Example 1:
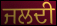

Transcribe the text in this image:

ਜਲਦੀ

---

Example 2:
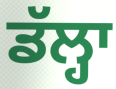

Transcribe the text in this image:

ਡੱਲ੍ਹਾ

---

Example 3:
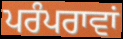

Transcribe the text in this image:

ਪਰੰਪਰਾਵਾਂ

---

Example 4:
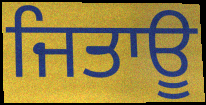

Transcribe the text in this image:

ਜਿਤਾਊ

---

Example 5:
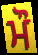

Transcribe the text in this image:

ਮੌ